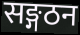
सङ्गठन